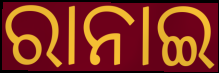
ରାନାଇ